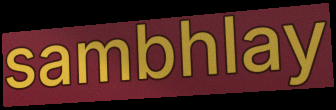
sambhlay